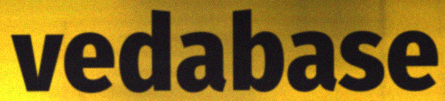
vedabase